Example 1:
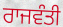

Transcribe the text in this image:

ਰਾਜਵੰਤੀ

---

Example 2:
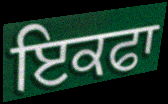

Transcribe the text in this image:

ਇਕਫਾ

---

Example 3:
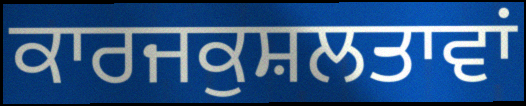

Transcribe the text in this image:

ਕਾਰਜਕੁਸ਼ਲਤਾਵਾਂ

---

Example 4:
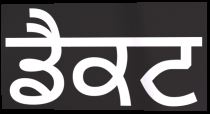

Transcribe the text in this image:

ਡੈਕਟ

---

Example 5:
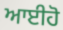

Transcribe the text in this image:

ਆਈਹੋ